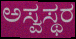
ಅಸ್ವಸ್ಥರ